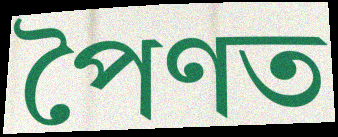
পৈণত